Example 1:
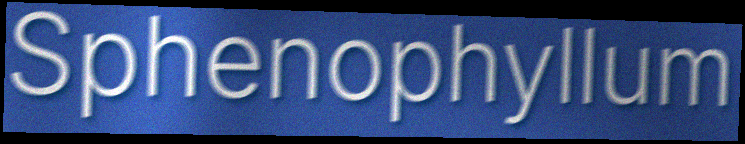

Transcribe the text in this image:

Sphenophyllum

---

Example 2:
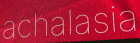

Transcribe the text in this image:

achalasia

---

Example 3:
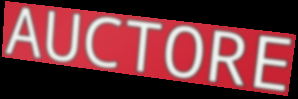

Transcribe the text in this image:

AUCTORE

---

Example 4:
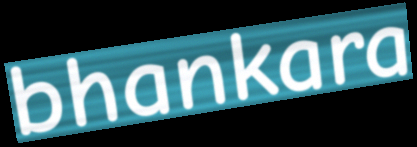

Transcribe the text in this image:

bhankara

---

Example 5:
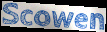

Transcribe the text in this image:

Scowen